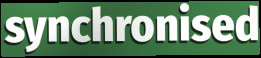
synchronised